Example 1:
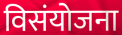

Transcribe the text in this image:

विसंयोजना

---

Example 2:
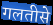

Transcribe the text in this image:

गलतीसे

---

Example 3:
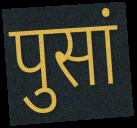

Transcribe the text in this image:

पुसां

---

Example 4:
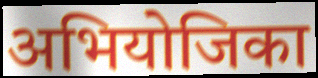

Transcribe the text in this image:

अभियोजिका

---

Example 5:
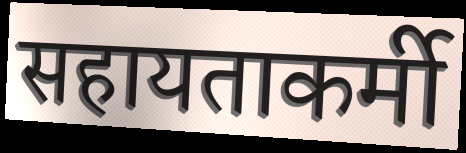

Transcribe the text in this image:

सहायताकर्मी